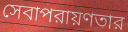
সেবাপরায়ণতার